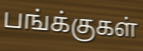
பங்க்குகள்